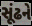
સૂંઢને